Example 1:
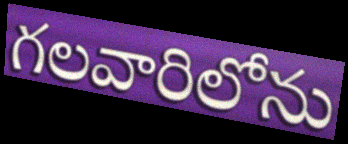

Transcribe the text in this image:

గలవారిలోను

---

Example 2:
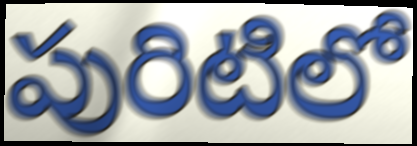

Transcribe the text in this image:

పురిటిలో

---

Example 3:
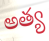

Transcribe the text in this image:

అత్య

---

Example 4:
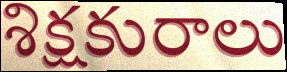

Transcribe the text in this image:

శిక్షకురాలు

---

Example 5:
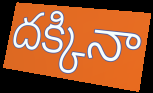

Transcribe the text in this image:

దక్కినా